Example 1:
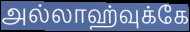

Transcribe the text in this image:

அல்லாஹ்வுக்கே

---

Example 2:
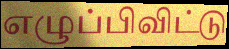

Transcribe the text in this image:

எழுப்பிவிட்டு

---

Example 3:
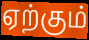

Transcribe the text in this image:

ஏற்கும்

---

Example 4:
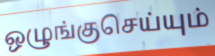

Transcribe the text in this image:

ஒழுங்குசெய்யும்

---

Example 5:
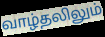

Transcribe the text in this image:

வாழ்தலிலும்